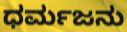
ಧರ್ಮಜನು